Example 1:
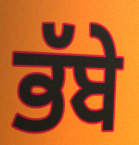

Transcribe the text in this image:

ਭੱਬੇ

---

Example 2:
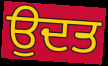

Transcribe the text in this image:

ਉਦਤ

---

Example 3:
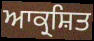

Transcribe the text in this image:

ਆਕ੍ਰਸ਼ਿਤ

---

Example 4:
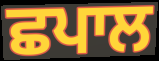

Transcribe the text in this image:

ਛਪਾਲ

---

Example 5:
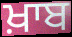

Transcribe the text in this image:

ਖ਼ਾਬ